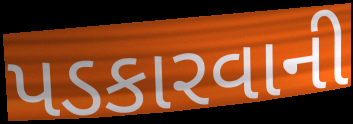
પડકારવાની